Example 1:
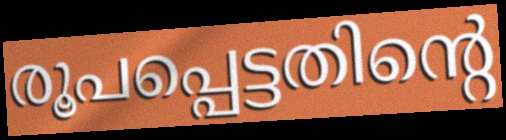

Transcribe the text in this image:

രൂപപ്പെട്ടതിന്റെ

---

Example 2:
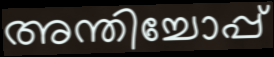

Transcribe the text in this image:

അന്തിച്ചോപ്പ്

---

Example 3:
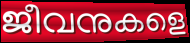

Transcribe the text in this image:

ജീവനുകളെ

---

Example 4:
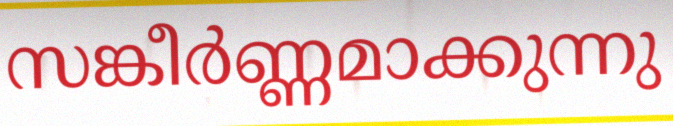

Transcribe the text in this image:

സങ്കീർണ്ണമാക്കുന്നു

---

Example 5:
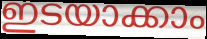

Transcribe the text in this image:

ഇടയാക്കാം